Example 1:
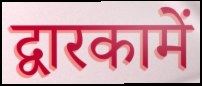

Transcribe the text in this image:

द्वारकामें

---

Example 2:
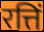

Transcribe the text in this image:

रत्तिं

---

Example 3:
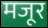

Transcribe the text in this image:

मजूर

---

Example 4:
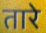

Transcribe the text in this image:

तारे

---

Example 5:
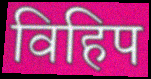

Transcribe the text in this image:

विहिप